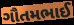
ગૌતમભાઈ